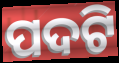
ପଦଟି